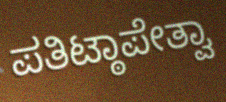
ಪತಿಟ್ಠಾಪೇತ್ವಾ